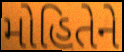
મોહિતેને